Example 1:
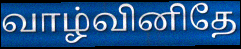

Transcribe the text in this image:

வாழ்வினிதே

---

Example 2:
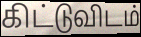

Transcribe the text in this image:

கிட்டுவிடம்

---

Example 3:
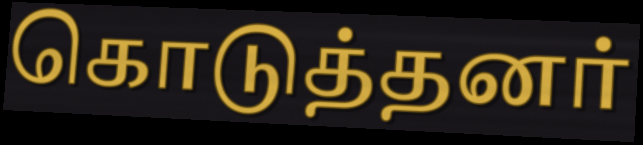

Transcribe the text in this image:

கொடுத்தனர்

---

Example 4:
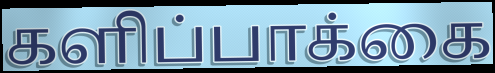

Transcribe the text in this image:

களிப்பாக்கை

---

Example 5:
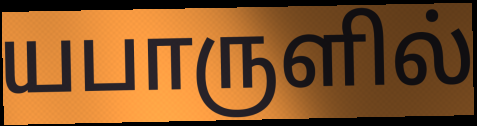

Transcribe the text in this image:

யபாருளில்